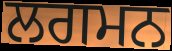
ਲਗਮਨ